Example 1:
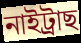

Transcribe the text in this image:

নাইট্ৰাছ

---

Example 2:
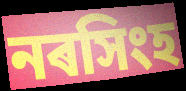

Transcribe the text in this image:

নৰসিংহ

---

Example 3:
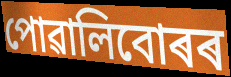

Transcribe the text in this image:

পোৱালিবোৰৰ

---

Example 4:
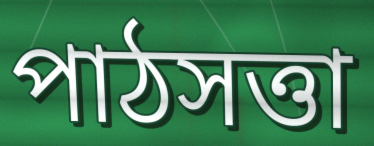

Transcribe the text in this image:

পাঠসত্তা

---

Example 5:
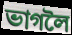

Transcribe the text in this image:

ভাগলৈ